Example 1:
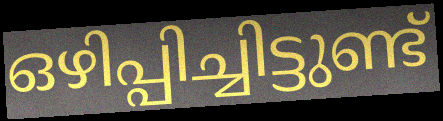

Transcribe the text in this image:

ഒഴിപ്പിച്ചിട്ടുണ്ട്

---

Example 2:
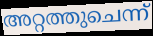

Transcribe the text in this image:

അറ്റത്തുചെന്ന്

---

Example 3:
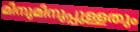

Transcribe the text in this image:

മിനുമിനുപ്പുള്ളതും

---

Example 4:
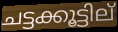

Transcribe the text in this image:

ചട്ടക്കൂട്ടില്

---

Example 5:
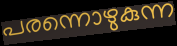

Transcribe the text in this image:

പരന്നൊഴുകുന്ന